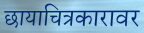
छायाचित्रकारावर